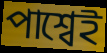
পাশ্বেই